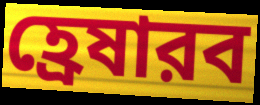
হ্রেষারব